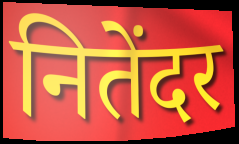
नितेंदर